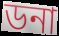
ডনা